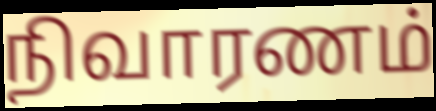
நிவாரணம்